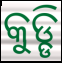
କୁଡ୍ଡି